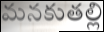
మనకుతల్లి